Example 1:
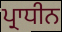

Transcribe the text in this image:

ਪ੍ਰਾਧੀਨ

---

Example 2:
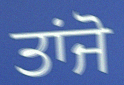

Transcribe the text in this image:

ਤਾਂਜੋ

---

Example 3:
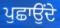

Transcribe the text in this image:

ਪੁਛਾਉਂਦੇ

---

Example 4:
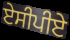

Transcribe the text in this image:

ਏਸੀਪੀਏ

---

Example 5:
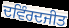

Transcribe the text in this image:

ਦਵਿੰਰਦਜੀਤ